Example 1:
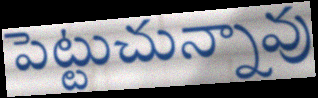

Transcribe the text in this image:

పెట్టుచున్నావు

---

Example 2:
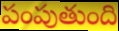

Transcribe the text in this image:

పంపుతుంది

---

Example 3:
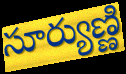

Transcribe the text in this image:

సూర్యుణ్ణి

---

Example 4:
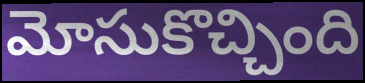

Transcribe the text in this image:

మోసుకొచ్చింది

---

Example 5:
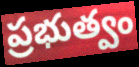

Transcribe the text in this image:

ప్రభుత్వం